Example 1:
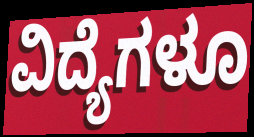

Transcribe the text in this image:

ವಿದ್ಯೆಗಳೂ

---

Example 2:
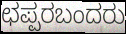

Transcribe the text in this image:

ಛಪ್ಪರಬಂದರು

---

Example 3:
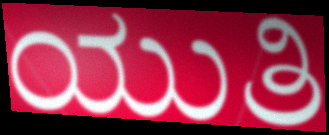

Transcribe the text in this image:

ಯುತಿ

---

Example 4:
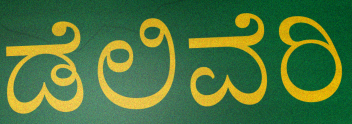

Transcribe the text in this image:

ಡೆಲಿವೆರಿ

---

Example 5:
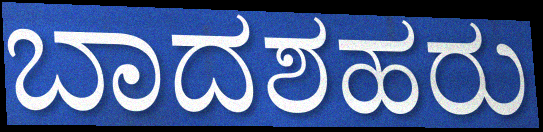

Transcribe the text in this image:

ಬಾದಶಹರು